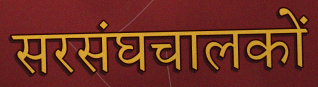
सरसंघचालकों